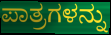
ಪಾತ್ರಗಳನ್ನು